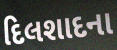
દિલશાદના